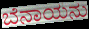
ಬೆನಾಯನು